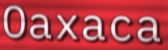
Oaxaca